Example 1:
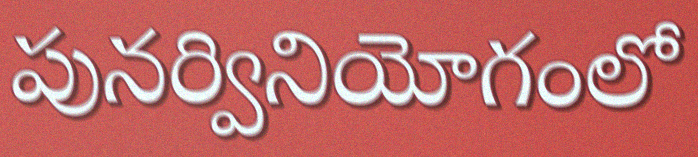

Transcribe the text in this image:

పునర్వినియోగంలో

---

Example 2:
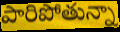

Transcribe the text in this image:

పారిపోతున్నా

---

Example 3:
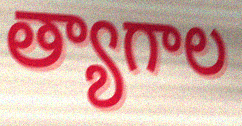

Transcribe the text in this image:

త్యాగాల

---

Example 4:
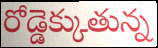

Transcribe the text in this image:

రోడ్డెక్కుతున్న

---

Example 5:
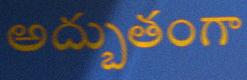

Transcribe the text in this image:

అద్బుతంగా